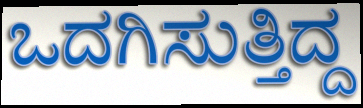
ಒದಗಿಸುತ್ತಿದ್ದ